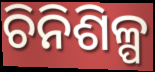
ଚିନିଶିଳ୍ପ